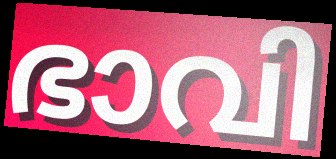
ഭാവി